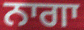
ਨਾਗਾ